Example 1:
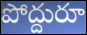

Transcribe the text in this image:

పోద్దురూ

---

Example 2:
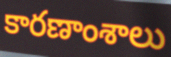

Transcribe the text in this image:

కారణాంశాలు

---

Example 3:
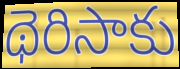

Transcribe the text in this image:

థెరిసాకు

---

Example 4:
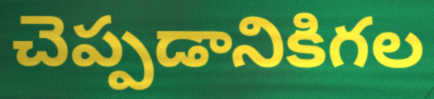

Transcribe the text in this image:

చెప్పడానికిగల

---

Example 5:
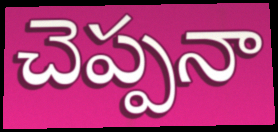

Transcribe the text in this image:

చెప్పనా